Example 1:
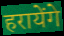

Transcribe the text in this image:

हरायेंगे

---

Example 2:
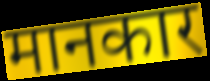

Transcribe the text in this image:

मानकार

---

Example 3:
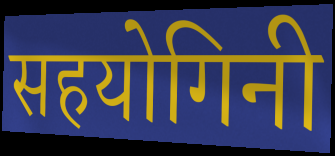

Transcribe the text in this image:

सहयोगिनी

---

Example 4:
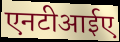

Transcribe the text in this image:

एनटीआईए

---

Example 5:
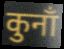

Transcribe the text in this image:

कुनाँ